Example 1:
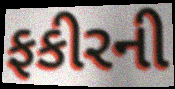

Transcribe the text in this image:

ફકીરની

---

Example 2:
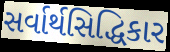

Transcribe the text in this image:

સર્વાર્થસિદ્ધિકાર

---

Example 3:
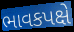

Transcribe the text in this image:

ભાવકપક્ષે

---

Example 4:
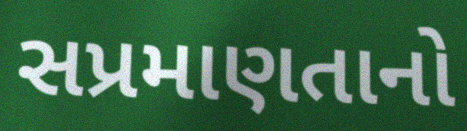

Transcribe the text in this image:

સપ્રમાણતાનો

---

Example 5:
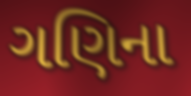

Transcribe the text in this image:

ગણિના